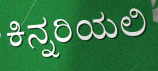
ಕಿನ್ನರಿಯಲಿ